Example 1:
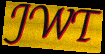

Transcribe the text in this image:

JWT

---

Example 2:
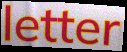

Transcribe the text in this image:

letter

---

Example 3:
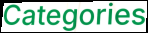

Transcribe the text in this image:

Categories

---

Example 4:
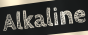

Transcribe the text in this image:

Alkaline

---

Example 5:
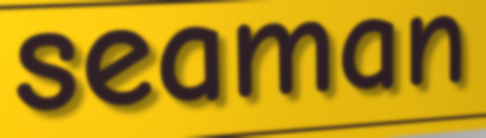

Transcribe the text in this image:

seaman